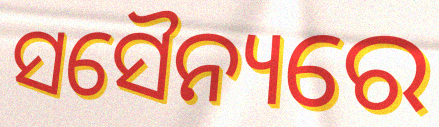
ସସୈନ୍ୟରେ